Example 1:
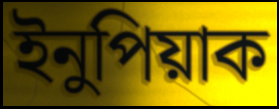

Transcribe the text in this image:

ইনুপিয়াক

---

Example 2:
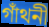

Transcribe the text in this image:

গাঁথনী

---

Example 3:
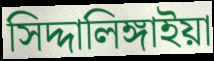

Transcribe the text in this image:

সিদ্দালিঙ্গাইয়া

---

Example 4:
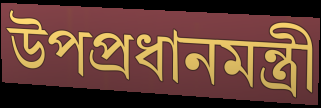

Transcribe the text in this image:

উপপ্রধানমন্ত্রী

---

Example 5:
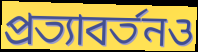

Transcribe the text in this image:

প্রত্যাবর্তনও